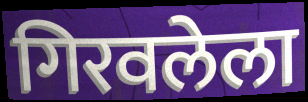
गिरवलेला